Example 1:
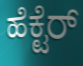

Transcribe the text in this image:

ಹೆಕ್ಟೆರ್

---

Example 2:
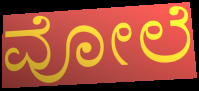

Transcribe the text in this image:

ವೋಲೆ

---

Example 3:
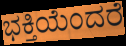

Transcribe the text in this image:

ಭಕ್ತಿಯೆಂದರೆ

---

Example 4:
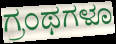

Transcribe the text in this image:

ಗ್ರಂಥಗಳೂ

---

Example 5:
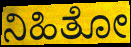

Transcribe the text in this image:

ನಿಹಿತೋ